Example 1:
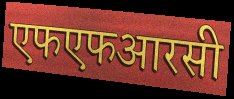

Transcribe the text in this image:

एफएफआरसी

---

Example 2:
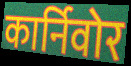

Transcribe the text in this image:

कार्निवोर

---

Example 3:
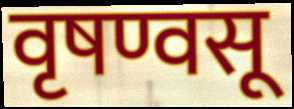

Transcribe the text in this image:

वृषण्वसू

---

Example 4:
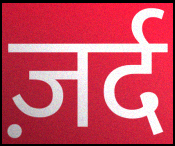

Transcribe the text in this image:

ज़र्द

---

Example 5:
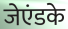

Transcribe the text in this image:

जेएंडके